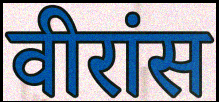
वीरांस